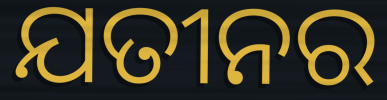
ଯତୀନର